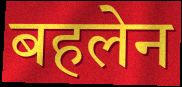
बहलेन